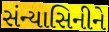
સંન્યાસિનીને